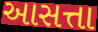
આસત્તા